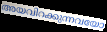
അയവിറക്കുന്നവയോ